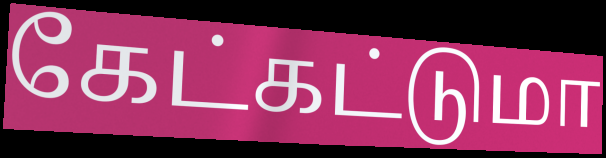
கேட்கட்டுமா